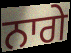
ਨਾਗੇ